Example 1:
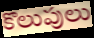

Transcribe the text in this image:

కొలుపులు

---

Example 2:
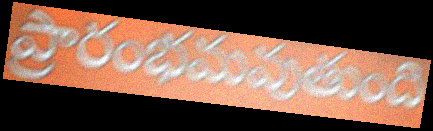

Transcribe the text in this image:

ప్రారంభమవుతుంది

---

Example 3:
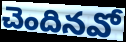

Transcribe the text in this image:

చెందినవో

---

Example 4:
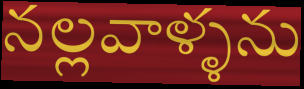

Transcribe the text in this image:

నల్లవాళ్ళను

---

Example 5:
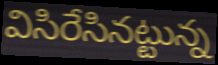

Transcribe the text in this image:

విసిరేసినట్టున్న